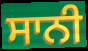
ਸਾਨੀ